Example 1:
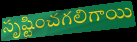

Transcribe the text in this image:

సృష్టించగలిగాయి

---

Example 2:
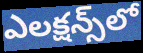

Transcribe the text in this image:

ఎలక్షన్స్‌లో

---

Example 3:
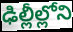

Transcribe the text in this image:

ఢిల్లీల్లోని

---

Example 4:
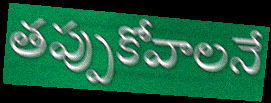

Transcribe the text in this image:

తప్పుకోవాలనే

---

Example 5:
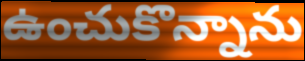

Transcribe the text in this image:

ఉంచుకొన్నాను